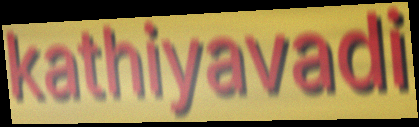
kathiyavadi